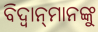
ବିଦ୍ଵାନ୍‌ମାନଙ୍କୁ